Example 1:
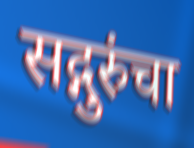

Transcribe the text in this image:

सद्गुरुंचा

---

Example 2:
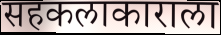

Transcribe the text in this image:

सहकलाकाराला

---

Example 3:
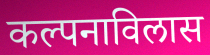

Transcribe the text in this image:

कल्पनाविलास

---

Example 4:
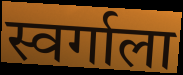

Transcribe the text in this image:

स्वर्गाला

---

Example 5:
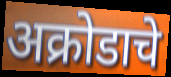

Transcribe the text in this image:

अक्रोडाचे